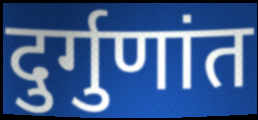
दुर्गुणांत